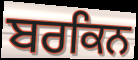
ਬਰਕਿਨ